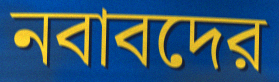
নবাবদের